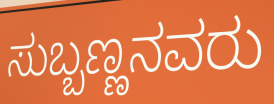
ಸುಬ್ಬಣ್ಣನವರು